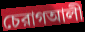
চেরাগআলী